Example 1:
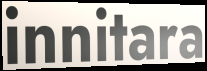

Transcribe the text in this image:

innitara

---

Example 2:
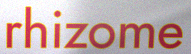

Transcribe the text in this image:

rhizome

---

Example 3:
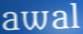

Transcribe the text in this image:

awal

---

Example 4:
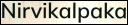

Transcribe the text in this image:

Nirvikalpaka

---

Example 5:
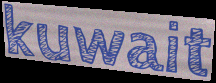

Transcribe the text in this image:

kuwait